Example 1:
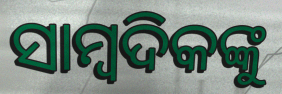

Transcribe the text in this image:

ସାମ୍ବଦିକଙ୍କୁ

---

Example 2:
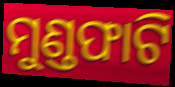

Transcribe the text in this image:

ମୁଣ୍ଡଫାଟି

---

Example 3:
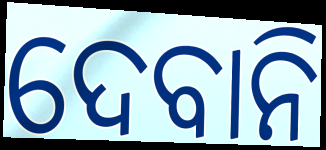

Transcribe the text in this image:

ଦେବାନି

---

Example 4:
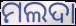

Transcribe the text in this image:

ମଲଦା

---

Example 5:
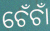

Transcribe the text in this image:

ଚେଁଚାଁ